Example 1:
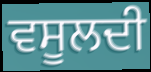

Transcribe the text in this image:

ਵਸੂਲਦੀ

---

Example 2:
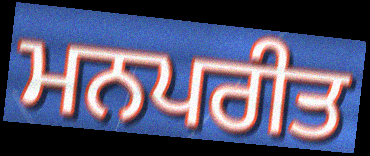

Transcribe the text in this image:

ਮਨਪਰੀਤ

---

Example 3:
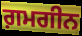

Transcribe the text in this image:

ਗ਼ਮਗੀਨ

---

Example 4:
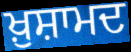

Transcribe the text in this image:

ਖ਼ੁਸ਼ਾਮਦ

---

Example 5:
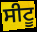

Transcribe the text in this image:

ਸੀਟੂ